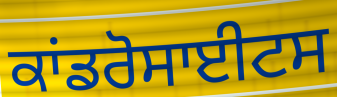
ਕਾਂਡਰੋਸਾਈਟਸ